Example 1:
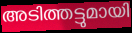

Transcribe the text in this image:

അടിത്തട്ടുമായി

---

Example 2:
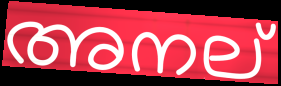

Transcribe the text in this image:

അനല്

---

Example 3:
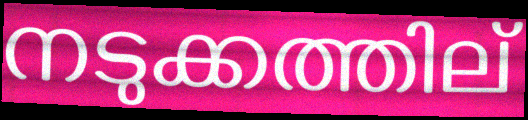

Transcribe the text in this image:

നടുക്കത്തില്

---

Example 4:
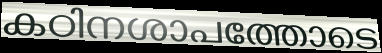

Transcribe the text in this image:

കഠിനശാപത്തോടെ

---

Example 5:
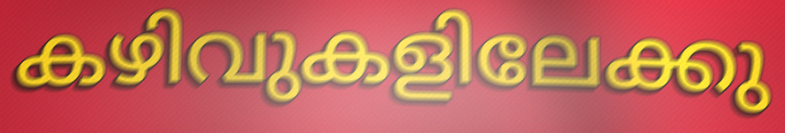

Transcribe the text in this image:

കഴിവുകളിലേക്കു